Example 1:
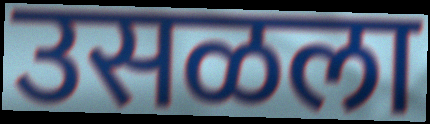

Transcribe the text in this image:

उसळला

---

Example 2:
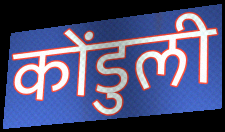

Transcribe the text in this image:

कोंडुली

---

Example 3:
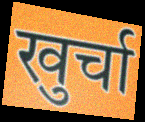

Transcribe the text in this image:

खुर्चा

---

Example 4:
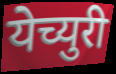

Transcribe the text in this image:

येच्युरी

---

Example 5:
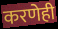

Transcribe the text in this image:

करणेही